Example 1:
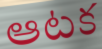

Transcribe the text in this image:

ఆటక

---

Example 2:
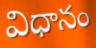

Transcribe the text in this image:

విధానం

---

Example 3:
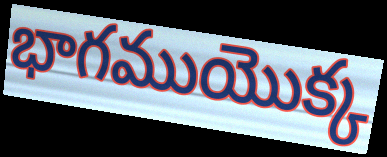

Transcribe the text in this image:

భాగముయొక్క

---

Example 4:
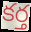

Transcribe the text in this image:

కర్త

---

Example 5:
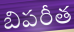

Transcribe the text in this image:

బిపరీత